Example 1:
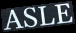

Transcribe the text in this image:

ASLE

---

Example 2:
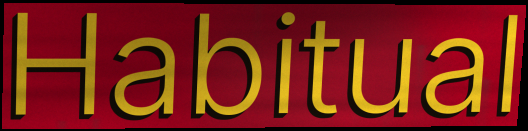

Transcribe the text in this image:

Habitual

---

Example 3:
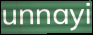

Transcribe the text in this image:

unnayi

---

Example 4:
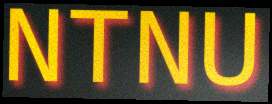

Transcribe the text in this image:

NTNU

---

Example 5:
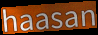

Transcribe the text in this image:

haasan